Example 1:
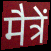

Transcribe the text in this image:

मैत्रें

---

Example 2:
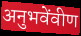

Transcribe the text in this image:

अनुभवेंवीण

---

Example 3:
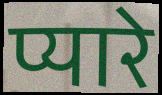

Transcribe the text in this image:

प्यारे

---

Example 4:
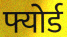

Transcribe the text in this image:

फ्योर्ड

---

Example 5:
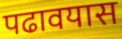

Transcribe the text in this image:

पढावयास